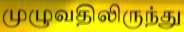
முழுவதிலிருந்து